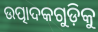
ଉତ୍ପାଦକଗୁଡ଼ିକୁ